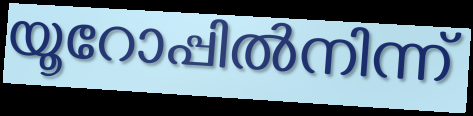
യൂറോപ്പിൽനിന്ന്